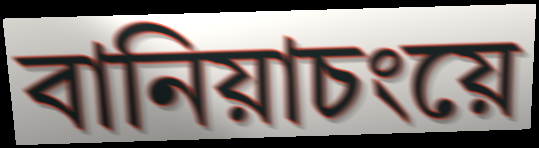
বানিয়াচংয়ে